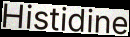
Histidine